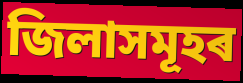
জিলাসমূহৰ